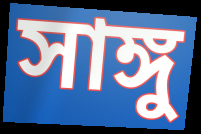
সাঙ্গু